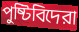
পুষ্টিবিদেরা